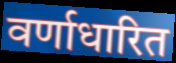
वर्णाधारित